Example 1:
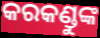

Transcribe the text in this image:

କରକଣ୍ଡୁଙ୍କ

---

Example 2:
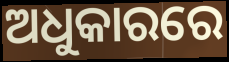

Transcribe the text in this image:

ଅଧୁକାରରେ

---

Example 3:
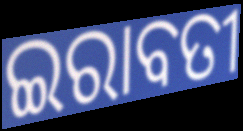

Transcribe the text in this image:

ଇରାବତୀ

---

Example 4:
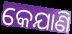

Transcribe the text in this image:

କେଯାଣି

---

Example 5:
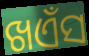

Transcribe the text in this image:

ଖଏଁସ